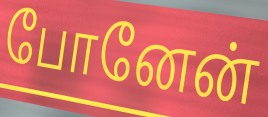
போனேன்